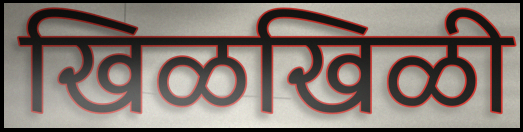
खिळखिळी